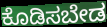
ಕೊಡಿಸಬೇಡ